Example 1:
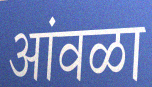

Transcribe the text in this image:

आंवळा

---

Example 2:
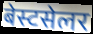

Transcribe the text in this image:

बेस्टसेलर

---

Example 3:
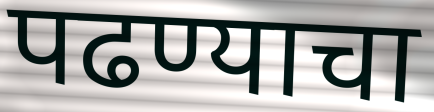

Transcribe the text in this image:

पढण्याचा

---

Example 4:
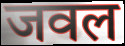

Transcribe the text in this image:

जवल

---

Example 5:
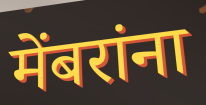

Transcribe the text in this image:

मेंबरांना